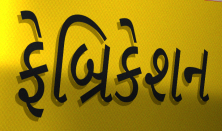
ફેબ્રિકેશન